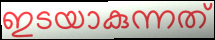
ഇടയാകുന്നത്